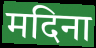
मदिना